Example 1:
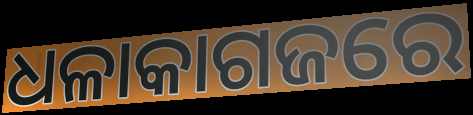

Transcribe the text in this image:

ଧଳାକାଗଜରେ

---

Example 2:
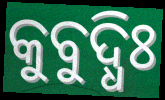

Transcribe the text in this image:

କୁବୁଦ୍ଧିଃ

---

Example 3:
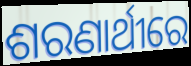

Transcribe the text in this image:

ଶରଣାର୍ଥୀରେ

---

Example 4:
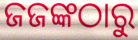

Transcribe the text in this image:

ଜଜଙ୍କଠାରୁ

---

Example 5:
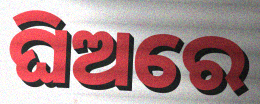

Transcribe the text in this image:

ଘିଅରେ